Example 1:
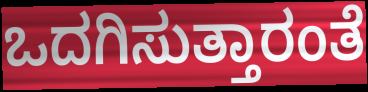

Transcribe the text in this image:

ಒದಗಿಸುತ್ತಾರಂತೆ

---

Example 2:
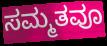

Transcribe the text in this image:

ಸಮ್ಮತವೂ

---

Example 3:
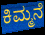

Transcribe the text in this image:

ಕಿಮ್ಮನೆ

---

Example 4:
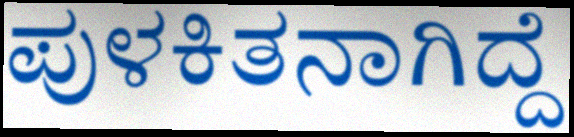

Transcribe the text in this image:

ಪುಳಕಿತನಾಗಿದ್ದೆ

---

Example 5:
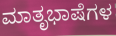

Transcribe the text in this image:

ಮಾತೃಭಾಷೆಗಳ